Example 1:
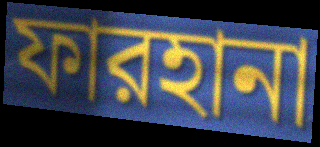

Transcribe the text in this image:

ফারহানা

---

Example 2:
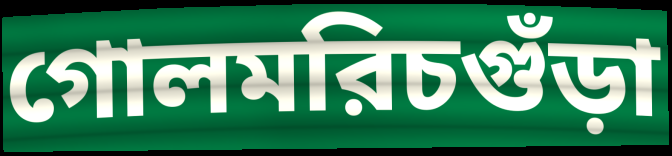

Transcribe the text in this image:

গোলমরিচগুঁড়া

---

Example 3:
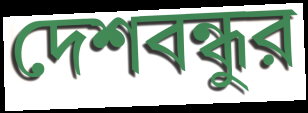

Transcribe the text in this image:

দেশবন্ধুর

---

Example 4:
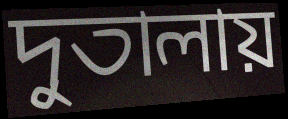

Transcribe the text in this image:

দুতালায়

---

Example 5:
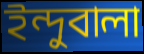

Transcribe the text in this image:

ইন্দুবালা